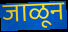
जाळून